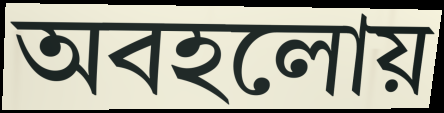
অবহলোয়